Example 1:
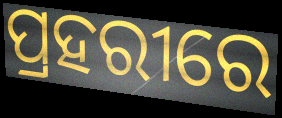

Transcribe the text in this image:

ପ୍ରହରୀରେ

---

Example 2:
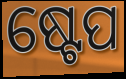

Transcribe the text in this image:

ଷ୍ଟେପ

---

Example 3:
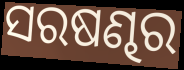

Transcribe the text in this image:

ସରଷଣ୍ଢର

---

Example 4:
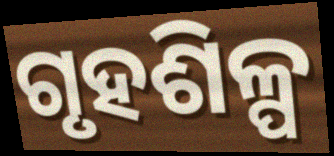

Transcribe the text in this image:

ଗୃହଶିଳ୍ପ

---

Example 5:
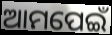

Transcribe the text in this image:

ଆମପେଇଁ